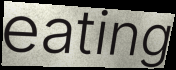
eating